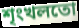
শৃংখলতো